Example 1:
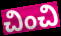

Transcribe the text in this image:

చించి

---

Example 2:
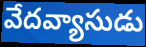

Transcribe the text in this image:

వేదవ్యాసుడు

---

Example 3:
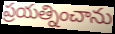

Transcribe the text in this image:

ప్రయత్నించాను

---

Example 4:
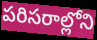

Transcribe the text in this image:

పరిసరాల్లోని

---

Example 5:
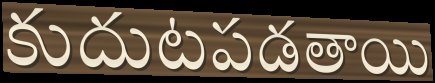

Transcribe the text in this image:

కుదుటపడతాయి